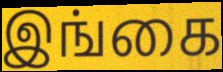
இங்கை